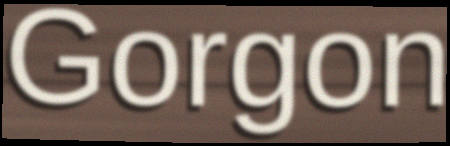
Gorgon